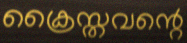
ക്രൈസ്തവന്റെ